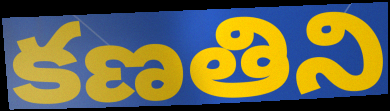
కణతిని